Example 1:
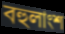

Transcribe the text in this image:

বহুলাংশ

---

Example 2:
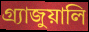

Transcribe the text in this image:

গ্র্যাজুয়ালি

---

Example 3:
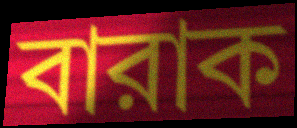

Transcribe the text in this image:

বারাক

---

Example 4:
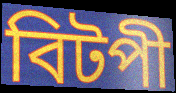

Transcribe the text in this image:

বিটপী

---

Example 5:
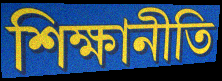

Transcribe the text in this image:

শিক্ষানীতি